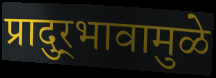
प्रादुर्भावामुळे